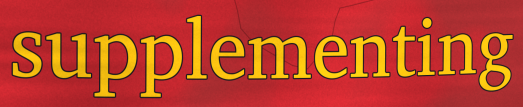
supplementing